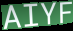
AIYF